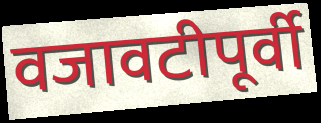
वजावटीपूर्वी